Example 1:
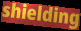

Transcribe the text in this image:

shielding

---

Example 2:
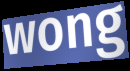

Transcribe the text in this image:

wong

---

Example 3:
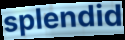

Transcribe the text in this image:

splendid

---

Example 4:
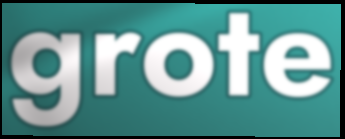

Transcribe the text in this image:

grote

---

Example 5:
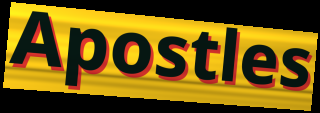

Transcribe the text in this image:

Apostles